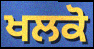
ਖਲਕੋ